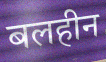
बलहीन